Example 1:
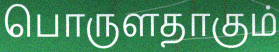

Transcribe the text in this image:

பொருளதாகும்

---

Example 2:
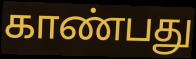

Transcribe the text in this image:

காண்பது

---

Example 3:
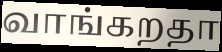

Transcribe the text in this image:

வாங்கறதா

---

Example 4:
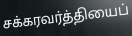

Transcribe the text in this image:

சக்கரவர்த்தியைப்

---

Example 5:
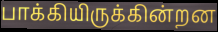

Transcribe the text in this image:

பாக்கியிருக்கின்றன